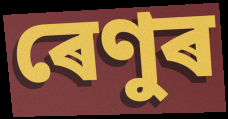
ৰেণুৰ